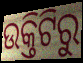
ଉକ୍ତିଟିରୁ